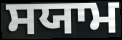
ਸਯਾਮ